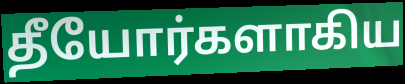
தீயோர்களாகிய